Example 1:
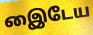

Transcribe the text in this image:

இைடேய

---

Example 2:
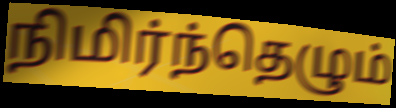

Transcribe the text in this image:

நிமிர்ந்தெழும்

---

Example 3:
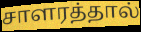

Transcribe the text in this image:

சாளரத்தால்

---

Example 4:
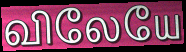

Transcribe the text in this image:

விலேயே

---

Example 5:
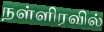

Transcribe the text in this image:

நள்ளிரவில்